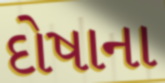
દોષાના